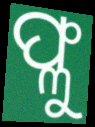
ଫ୍ଳୁ